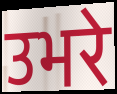
उभरे